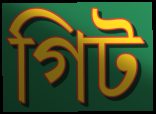
গিট